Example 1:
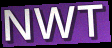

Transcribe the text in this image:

NWT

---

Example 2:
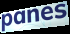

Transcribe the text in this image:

panes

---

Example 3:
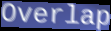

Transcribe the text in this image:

Overlap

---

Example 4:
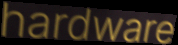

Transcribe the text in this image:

hardware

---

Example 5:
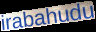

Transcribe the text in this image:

irabahudu